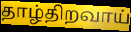
தாழ்திறவாய்